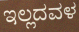
ಇಲ್ಲದವಳ